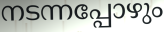
നടന്നപ്പോഴും